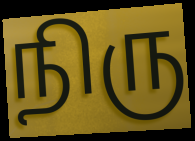
நிரு